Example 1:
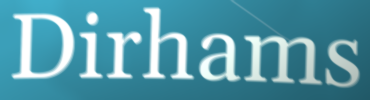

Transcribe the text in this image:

Dirhams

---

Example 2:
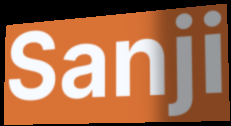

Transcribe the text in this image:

Sanji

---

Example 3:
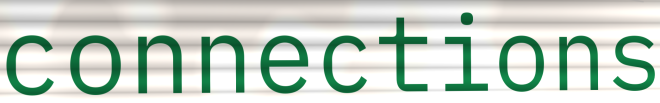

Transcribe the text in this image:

connections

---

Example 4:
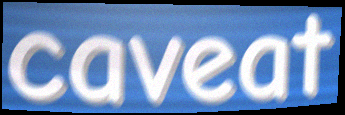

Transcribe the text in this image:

caveat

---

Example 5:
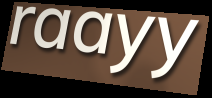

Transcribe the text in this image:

raayy